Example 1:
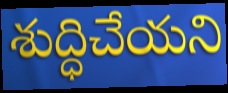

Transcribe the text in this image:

శుద్ధిచేయని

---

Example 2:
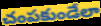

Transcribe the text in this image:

చంపకుండేలా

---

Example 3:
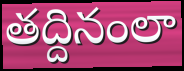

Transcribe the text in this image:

తద్దినంలా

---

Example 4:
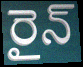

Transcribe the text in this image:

రైన్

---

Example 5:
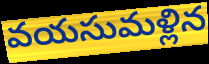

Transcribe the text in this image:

వయసుమళ్లిన